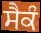
ਸੈਕੰ